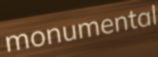
monumental